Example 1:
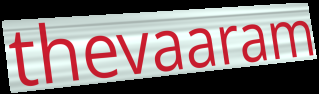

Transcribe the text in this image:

thevaaram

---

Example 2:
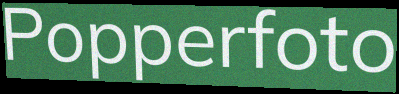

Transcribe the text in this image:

Popperfoto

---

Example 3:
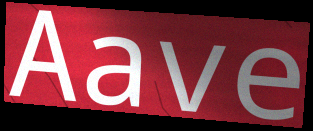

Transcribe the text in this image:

Aave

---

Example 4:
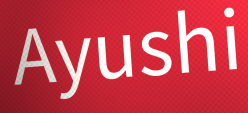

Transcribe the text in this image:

Ayushi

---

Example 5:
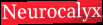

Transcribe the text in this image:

Neurocalyx